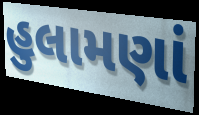
હુલામણાં